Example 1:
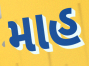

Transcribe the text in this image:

માહ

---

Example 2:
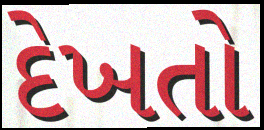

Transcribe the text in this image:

દેખતો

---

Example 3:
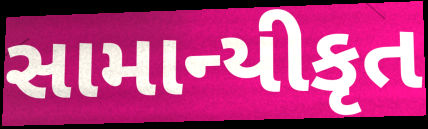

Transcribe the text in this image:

સામાન્યીકૃત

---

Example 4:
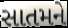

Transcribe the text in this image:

સાતમને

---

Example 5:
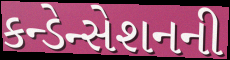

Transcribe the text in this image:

કન્ડેન્સેશનની